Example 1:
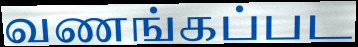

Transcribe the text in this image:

வணங்கப்பட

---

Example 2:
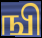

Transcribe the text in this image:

ஙி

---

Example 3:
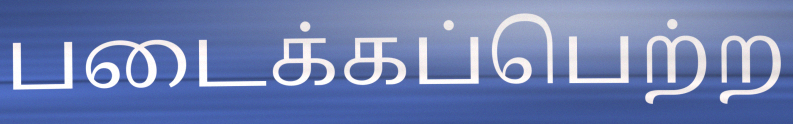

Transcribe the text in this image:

படைக்கப்பெற்ற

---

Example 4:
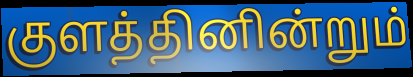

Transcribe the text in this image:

குளத்தினின்றும்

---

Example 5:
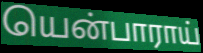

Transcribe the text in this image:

யென்பாராய்